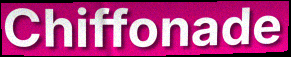
Chiffonade